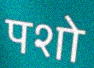
पशो